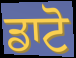
ਡਾਟੋ